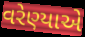
વરેણ્યાએ